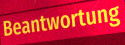
Beantwortung